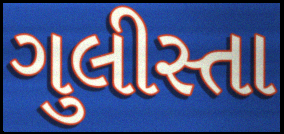
ગુલીસ્તા